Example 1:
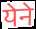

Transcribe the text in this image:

येने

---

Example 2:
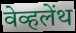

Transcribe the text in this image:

वेव्हलेंथ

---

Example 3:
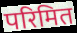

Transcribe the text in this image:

परिमित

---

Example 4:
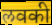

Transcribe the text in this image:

लवकी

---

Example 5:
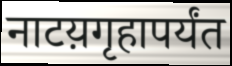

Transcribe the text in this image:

नाटय़गृहापर्यंत